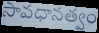
సావధానత్వం